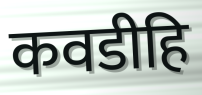
कवडीहि